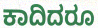
ಕಾದಿದರೂ